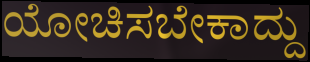
ಯೋಚಿಸಬೇಕಾದ್ದು